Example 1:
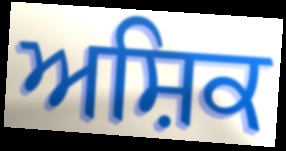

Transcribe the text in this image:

ਅਸ਼ਿਕ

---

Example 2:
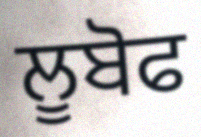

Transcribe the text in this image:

ਲੂਬੋਫ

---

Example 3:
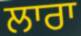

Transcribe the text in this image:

ਲਾਰਾ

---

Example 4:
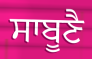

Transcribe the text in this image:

ਸਾਬੂਣੈ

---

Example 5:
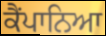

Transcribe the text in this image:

ਕੈਂਪਾਨਿਆ